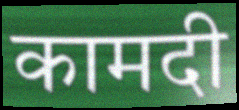
कामदी